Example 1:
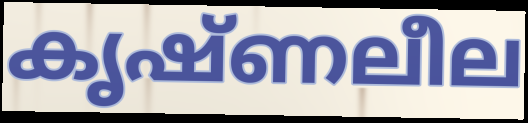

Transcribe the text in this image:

കൃഷ്ണലീല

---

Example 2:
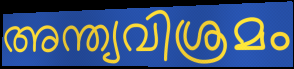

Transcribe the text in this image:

അന്ത്യവിശ്രമം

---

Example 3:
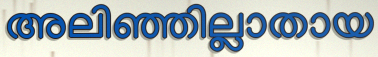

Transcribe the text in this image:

അലിഞ്ഞില്ലാതായ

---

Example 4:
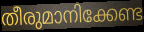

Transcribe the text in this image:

തീരുമാനിക്കേണ്ട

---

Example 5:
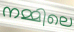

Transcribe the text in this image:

നമ്മിലെ